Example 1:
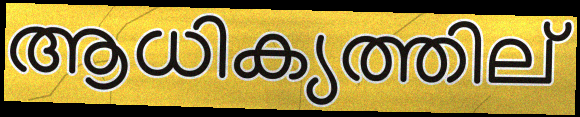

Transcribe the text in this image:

ആധിക്യത്തില്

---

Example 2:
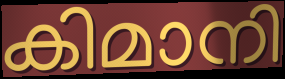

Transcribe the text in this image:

കിമാനി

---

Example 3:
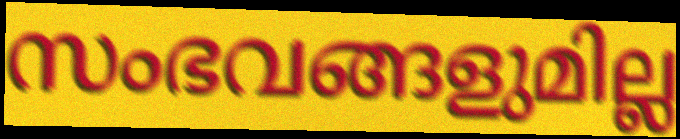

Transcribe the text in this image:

സംഭവങ്ങളുമില്ല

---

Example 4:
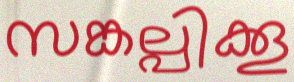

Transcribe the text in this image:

സങ്കല്പിക്കൂ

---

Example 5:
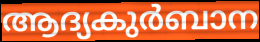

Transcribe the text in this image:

ആദ്യകുർബാന